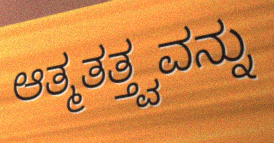
ಆತ್ಮತತ್ತ್ವವನ್ನು